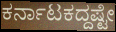
ಕರ್ನಾಟಕದ್ದಷ್ಟೇ